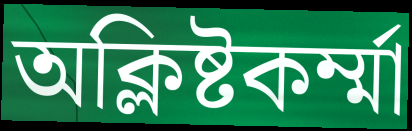
অক্লিষ্টকর্ম্মা